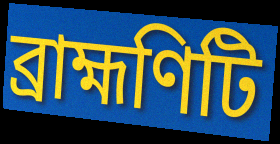
ব্রাহ্মণিটি